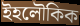
ইহলৌকিক